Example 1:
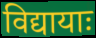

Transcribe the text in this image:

विद्यायाः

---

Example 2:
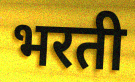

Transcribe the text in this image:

भरती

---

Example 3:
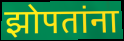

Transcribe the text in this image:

झोपतांना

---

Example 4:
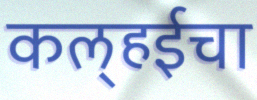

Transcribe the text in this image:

कल्हईचा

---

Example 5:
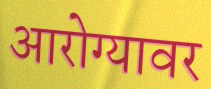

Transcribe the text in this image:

आरोग्यावर